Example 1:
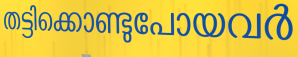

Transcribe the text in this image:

തട്ടിക്കൊണ്ടുപോയവർ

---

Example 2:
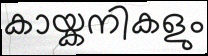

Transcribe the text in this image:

കായ്കനികളും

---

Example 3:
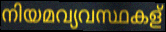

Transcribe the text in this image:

നിയമവ്യവസ്ഥകള്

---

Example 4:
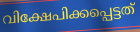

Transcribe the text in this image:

വിക്ഷേപിക്കപ്പെട്ടത്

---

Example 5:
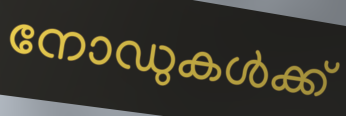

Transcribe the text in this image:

നോഡുകൾക്ക്